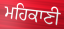
ਮਹਿਕਾਣੀ